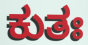
ಕುತಃ